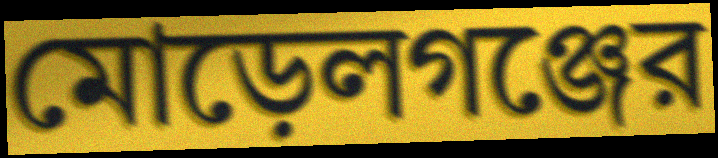
মোড়েলগঞ্জের